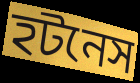
হটনেস